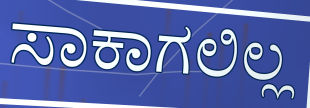
ಸಾಕಾಗಲಿಲ್ಲ